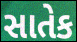
સાતેક